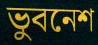
ভুবনেশ